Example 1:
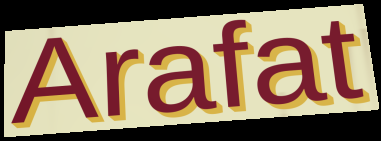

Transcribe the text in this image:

Arafat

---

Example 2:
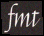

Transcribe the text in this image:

fmt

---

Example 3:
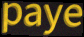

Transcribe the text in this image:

paye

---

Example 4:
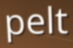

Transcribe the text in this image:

pelt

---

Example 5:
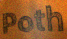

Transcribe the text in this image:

Poth